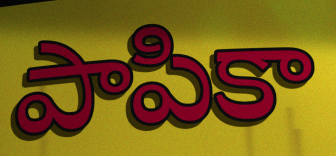
పాపికా